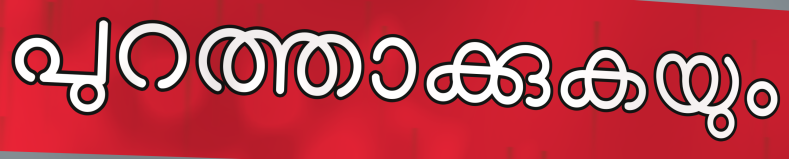
പുറത്താക്കുകയും